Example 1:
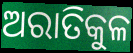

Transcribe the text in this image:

ଅରାତିକୁଳ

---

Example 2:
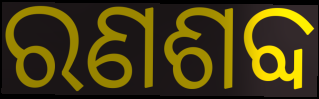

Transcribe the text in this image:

ରଣଶବ୍ଦ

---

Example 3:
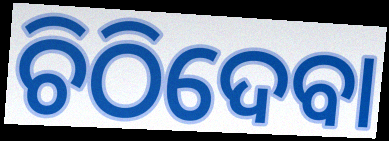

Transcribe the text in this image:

ଚିଠିଦେବା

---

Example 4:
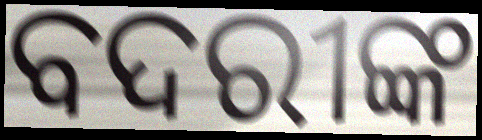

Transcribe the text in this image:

ବଦରୀଙ୍କ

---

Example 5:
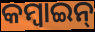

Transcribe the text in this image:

କମ୍ବାଇନ୍